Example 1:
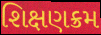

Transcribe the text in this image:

શિક્ષણક્રમ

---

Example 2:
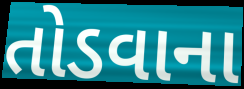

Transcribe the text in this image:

તોડવાના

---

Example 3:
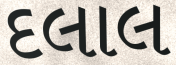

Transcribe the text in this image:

દલાલ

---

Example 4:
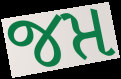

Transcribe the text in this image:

જપ્ત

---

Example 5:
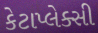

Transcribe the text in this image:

કેટાપ્લેક્સી